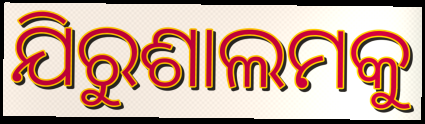
ଯିରୁଶାଲମକୁ